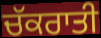
ਚੱਕਰਾਤੀ